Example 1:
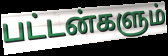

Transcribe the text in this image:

பட்டன்களும்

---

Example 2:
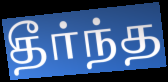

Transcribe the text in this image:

தீர்ந்த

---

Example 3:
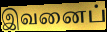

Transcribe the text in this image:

இவனைப்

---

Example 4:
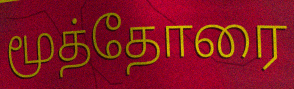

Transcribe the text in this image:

மூத்தோரை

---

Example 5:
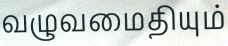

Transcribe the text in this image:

வழுவமைதியும்